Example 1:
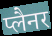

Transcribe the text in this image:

प्लैनर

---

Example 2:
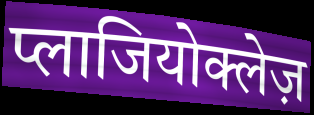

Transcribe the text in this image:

प्लाजियोक्लेज़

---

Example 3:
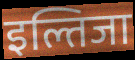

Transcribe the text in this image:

इल्तिजा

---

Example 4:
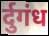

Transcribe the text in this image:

र्दुगंध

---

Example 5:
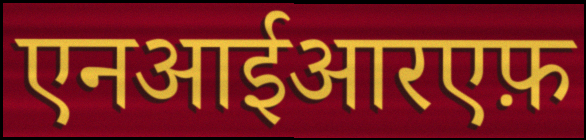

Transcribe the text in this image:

एनआईआरएफ़